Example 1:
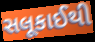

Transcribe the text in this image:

સલૂકાઈથી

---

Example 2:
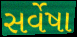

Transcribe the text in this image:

સર્વેષા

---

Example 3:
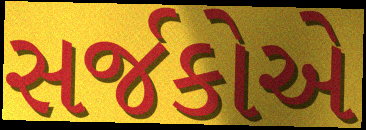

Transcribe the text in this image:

સર્જકોએ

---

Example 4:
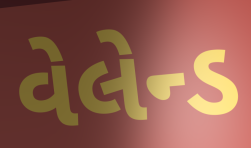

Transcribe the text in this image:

વેલેન્ડ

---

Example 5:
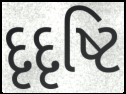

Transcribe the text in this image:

દૃદૃષ્ટિ